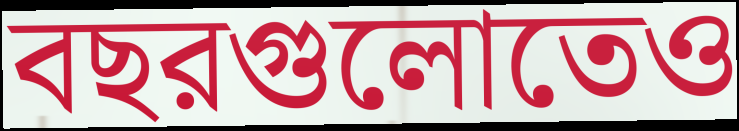
বছরগুলোতেও